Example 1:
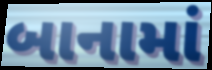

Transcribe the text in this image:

બાનામાં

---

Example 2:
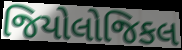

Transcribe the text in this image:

જિયોલોજિકલ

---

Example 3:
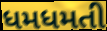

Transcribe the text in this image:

ધમધમતી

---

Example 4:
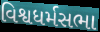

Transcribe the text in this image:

વિશ્વધર્મસભા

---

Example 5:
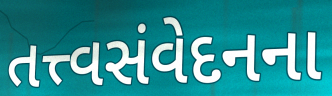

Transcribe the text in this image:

તત્ત્વસંવેદનના